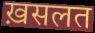
ख़सलत